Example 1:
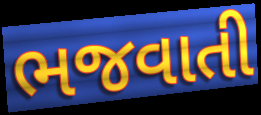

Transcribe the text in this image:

ભજવાતી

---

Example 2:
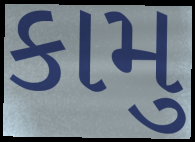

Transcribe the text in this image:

કામુ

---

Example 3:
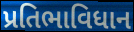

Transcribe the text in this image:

પ્રતિભાવિધાન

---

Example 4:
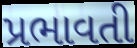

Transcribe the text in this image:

પ્રભાવતી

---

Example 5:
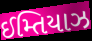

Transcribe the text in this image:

ઈમ્તિયાઝ